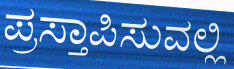
ಪ್ರಸ್ತಾಪಿಸುವಲ್ಲಿ